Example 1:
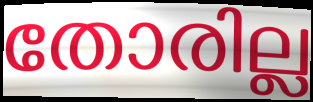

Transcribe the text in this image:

തോരില്ല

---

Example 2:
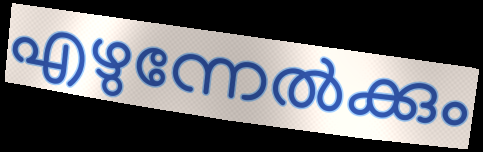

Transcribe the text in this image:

എഴുന്നേൽക്കും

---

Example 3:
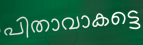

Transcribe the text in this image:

പിതാവാകട്ടെ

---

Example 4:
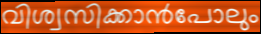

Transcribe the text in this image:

വിശ്വസിക്കാൻപോലും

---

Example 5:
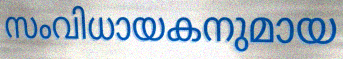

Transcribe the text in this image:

സംവിധായകനുമായ